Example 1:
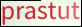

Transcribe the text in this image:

prastut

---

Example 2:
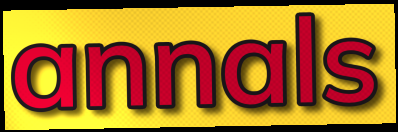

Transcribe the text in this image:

annals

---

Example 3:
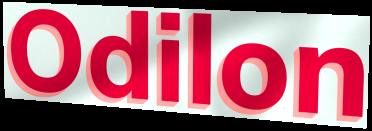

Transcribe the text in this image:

Odilon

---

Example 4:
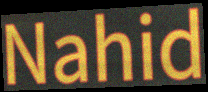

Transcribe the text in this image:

Nahid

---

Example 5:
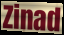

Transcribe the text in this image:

Zinad